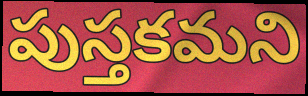
పుస్తకమని